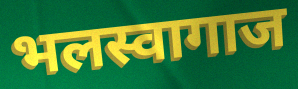
भलस्वागाज